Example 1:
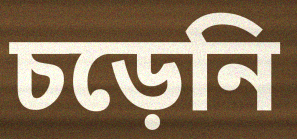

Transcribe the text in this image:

চড়েনি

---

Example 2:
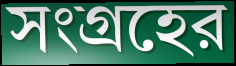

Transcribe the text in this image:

সংগ্রহের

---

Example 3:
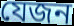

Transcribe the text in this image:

যেজন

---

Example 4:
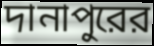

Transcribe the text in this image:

দানাপুরের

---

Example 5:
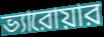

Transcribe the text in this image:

ভ্যারোয়ার